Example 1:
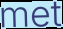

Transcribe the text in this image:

met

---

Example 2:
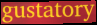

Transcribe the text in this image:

gustatory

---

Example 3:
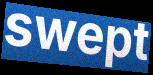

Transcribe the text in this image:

swept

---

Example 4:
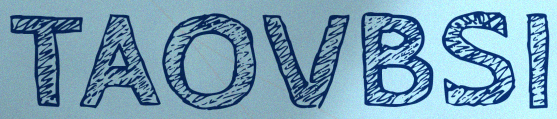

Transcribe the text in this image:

TAOVBSI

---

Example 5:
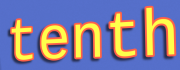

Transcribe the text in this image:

tenth